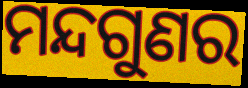
ମନ୍ଦଗୁଣର